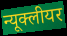
न्यूक्लीयर